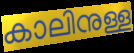
കാലിനുള്ള